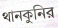
থানকুনির